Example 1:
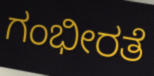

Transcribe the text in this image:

ಗಂಭೀರತೆ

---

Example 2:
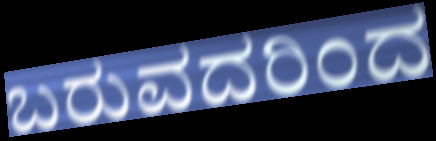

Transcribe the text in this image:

ಬರುವದರಿಂದ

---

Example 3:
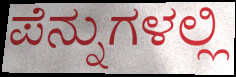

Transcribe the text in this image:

ಪೆನ್ನುಗಳಲ್ಲಿ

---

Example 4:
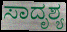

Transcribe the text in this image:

ಸಾದೃಶ್ಯ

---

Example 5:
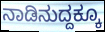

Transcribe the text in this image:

ನಾಡಿನುದ್ದಕ್ಕೂ